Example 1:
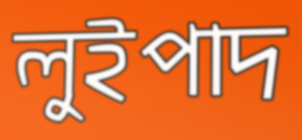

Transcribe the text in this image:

লুইপাদ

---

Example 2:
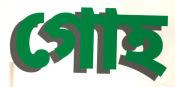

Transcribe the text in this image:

গোহ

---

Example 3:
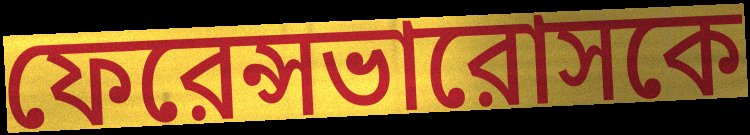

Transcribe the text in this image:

ফেরেন্সভারোসকে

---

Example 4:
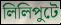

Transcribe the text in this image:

লিলিপুটে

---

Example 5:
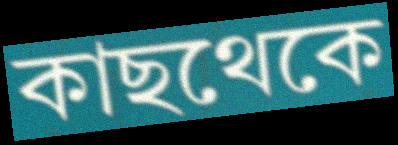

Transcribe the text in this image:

কাছথেকে